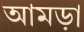
আমড়া